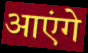
आएंगे